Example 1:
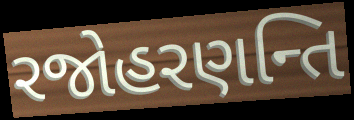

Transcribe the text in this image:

રજોહરણન્તિ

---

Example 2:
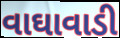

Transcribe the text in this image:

વાઘાવાડી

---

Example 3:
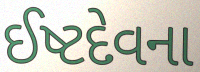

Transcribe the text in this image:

ઈષ્ટદેવના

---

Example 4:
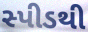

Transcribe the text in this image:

સ્પીડથી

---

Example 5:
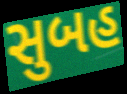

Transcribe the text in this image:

સુબહ